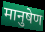
मानुषेण